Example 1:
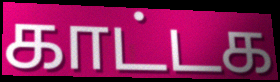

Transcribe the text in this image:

காட்டக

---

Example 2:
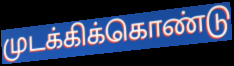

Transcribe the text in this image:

முடக்கிக்கொண்டு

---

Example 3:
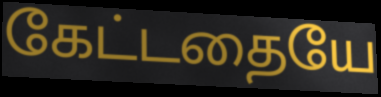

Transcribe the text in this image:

கேட்டதையே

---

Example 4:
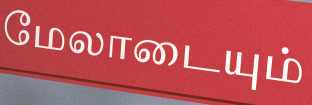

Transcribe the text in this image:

மேலாடையும்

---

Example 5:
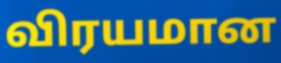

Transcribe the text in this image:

விரயமான